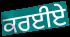
ਕਰਈਏ